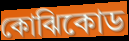
কোঝিকোড